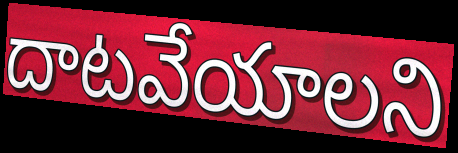
దాటవేయాలని